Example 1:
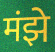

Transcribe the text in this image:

मंझे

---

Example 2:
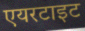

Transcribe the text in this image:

एयरटाइट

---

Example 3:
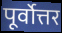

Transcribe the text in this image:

पूर्वोत्तर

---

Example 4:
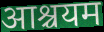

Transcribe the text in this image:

आश्चयम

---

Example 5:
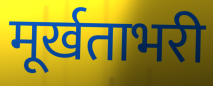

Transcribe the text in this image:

मूर्खताभरी